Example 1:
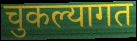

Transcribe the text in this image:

चुकल्यागत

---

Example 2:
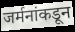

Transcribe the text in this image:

जर्मनांकडून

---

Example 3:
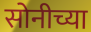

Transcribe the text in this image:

सोनीच्या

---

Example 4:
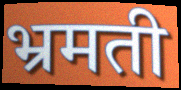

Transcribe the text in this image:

भ्रमती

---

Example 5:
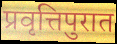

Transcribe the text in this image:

प्रवृत्तिपुरात